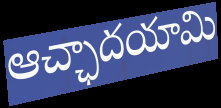
ఆచ్ఛాదయామి